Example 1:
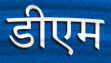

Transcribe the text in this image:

डीएम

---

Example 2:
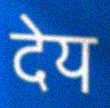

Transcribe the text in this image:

देय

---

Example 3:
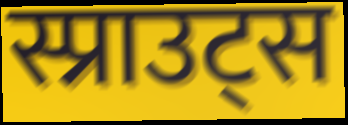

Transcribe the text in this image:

स्प्राउट्स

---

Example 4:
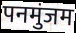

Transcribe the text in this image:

पनमुंजम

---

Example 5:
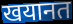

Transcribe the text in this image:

खयानत